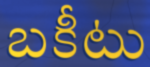
బకీటు